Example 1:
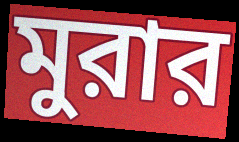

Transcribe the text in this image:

মুরার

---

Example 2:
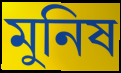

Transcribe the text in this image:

মুনিষ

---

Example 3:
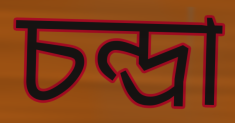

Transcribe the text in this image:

চন্দ্রা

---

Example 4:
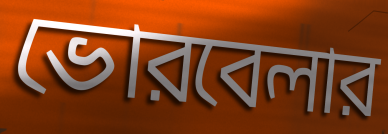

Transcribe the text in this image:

ভোরবেলার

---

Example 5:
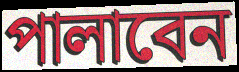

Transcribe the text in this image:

পালাবেন